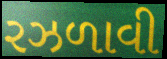
રઝળાવી